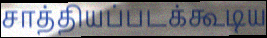
சாத்தியப்படக்கூடிய